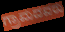
ಗ್ರಾಮದವರು